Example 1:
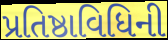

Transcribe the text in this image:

પ્રતિષ્ઠાવિધિની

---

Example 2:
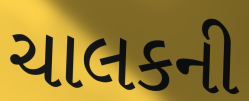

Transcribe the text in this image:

ચાલકની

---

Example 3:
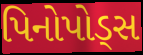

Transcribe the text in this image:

પિનોપોડ્સ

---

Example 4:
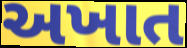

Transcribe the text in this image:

અખાત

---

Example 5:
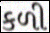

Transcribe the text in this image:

કળી